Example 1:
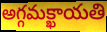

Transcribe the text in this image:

అగ్గమక్ఖాయతి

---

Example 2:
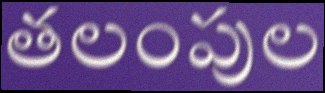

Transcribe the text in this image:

తలంపుల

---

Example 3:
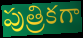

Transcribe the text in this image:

పుత్రికగా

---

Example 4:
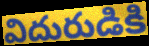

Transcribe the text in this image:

విదురుడికి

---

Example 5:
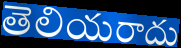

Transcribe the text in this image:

తెలియరాదు